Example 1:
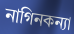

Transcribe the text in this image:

নাগিনকন্যা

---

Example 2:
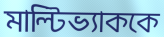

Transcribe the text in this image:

মাল্টিভ্যাককে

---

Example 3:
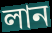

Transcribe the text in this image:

লান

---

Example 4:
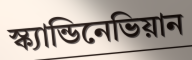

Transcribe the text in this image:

স্ক্যান্ডিনেভিয়ান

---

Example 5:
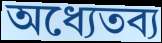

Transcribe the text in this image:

অধ্যেতব্য